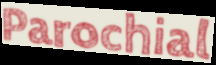
Parochial